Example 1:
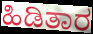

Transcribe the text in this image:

ಹಿಡಿತಾರ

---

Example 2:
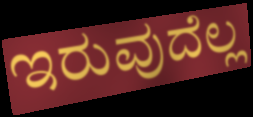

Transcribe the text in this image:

ಇರುವುದೆಲ್ಲ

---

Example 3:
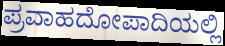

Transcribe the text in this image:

ಪ್ರವಾಹದೋಪಾದಿಯಲ್ಲಿ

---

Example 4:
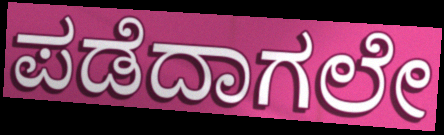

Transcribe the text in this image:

ಪಡೆದಾಗಲೇ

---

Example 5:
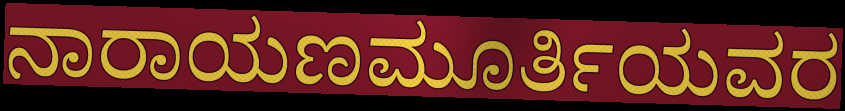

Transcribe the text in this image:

ನಾರಾಯಣಮೂರ್ತಿಯವರ